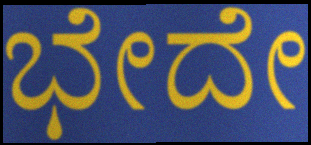
ಭೇದೇ